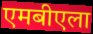
एमबीएला